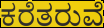
ಕರೆತರುವೆ